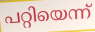
പറ്റിയെന്ന്